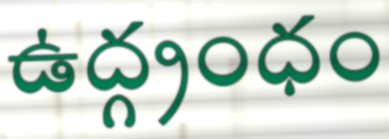
ఉద్గ్రంధం